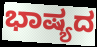
ಭಾಷ್ಯದ